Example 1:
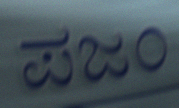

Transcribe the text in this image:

ಪಜಂ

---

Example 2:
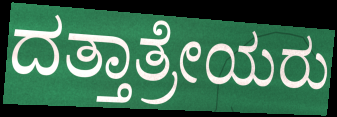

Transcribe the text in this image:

ದತ್ತಾತ್ರೇಯರು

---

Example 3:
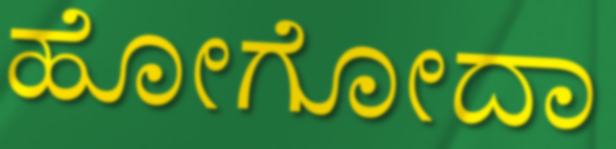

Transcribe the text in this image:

ಹೋಗೋದಾ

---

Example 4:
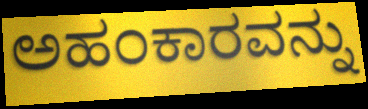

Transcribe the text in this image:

ಅಹಂಕಾರವನ್ನು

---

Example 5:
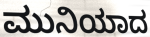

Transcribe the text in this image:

ಮುನಿಯಾದ